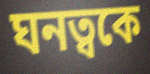
ঘনত্বকে